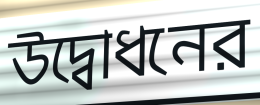
উদ্বোধনের